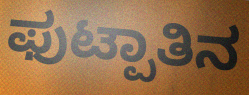
ಫುಟ್ಪಾತಿನ